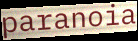
paranoia